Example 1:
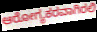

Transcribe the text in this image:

ಆರೋಗ್ಯಕರವಾಗಿರಲಿ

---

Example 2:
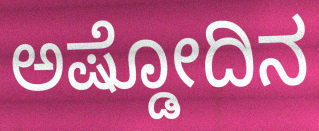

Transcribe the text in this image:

ಅಷ್ಡೋದಿನ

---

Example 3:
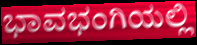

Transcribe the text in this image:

ಭಾವಭಂಗಿಯಲ್ಲಿ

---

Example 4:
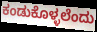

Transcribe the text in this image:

ಕಂಡುಕೊಳ್ಳಲೆಂದು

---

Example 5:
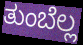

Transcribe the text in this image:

ತುಂಬೆಲ್ಲ